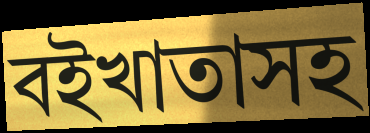
বইখাতাসহ